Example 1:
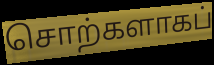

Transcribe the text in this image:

சொற்களாகப்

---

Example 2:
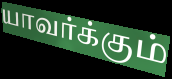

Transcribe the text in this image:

யாவர்க்கும்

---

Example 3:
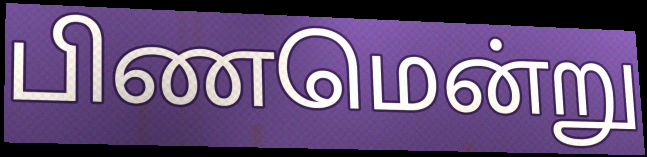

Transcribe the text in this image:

பிணமென்று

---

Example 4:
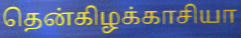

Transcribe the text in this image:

தென்கிழக்காசியா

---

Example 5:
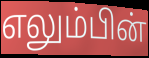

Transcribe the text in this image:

எலும்பின்